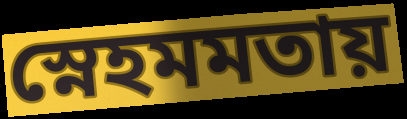
স্নেহমমতায়